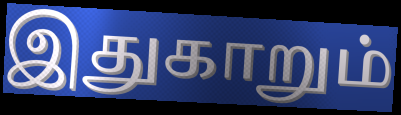
இதுகாறும்